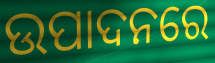
ଉପାଦନରେ